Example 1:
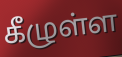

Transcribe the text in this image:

கீழுள்ள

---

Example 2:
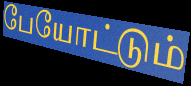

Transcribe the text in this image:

பேயோட்டும்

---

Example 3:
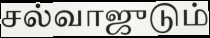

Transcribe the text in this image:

சல்வாஜுடும்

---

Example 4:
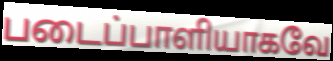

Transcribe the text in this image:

படைப்பாளியாகவே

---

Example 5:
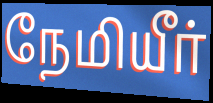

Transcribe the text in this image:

நேமியீர்